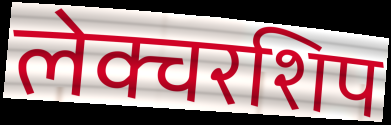
लेक्चरशिप